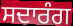
ਸਦਾਰੰਗ